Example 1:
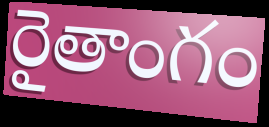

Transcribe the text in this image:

రైతాంగం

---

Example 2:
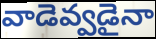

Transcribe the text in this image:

వాడెవ్వడైనా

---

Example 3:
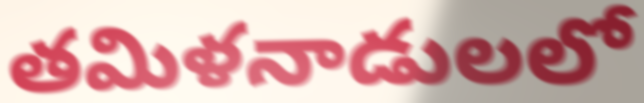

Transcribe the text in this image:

తమిళనాడులలో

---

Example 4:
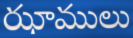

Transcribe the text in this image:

ఝాములు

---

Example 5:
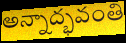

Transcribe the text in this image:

అన్నాద్భవంతి